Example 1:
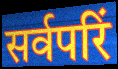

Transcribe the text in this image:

सर्वपरिं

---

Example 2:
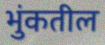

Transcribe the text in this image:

भुंकतील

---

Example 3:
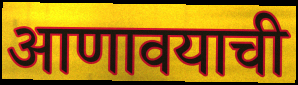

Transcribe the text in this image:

आणावयाची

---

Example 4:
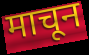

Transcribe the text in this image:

माचून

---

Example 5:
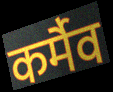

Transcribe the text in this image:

कर्मैव